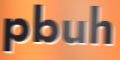
pbuh